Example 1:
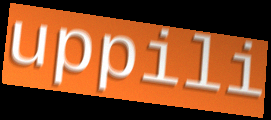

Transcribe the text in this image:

uppili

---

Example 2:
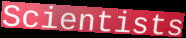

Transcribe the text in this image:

Scientists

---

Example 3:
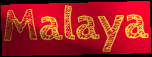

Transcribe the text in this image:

Malaya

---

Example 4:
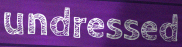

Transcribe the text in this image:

undressed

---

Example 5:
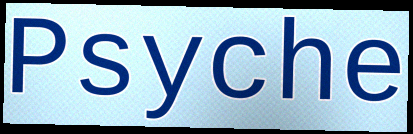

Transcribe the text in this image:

Psyche